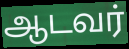
ஆடவர்